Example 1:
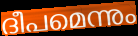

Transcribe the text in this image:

ദീപമെന്നും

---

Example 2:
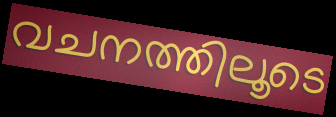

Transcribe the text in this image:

വചനത്തിലൂടെ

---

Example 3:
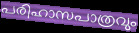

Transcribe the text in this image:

പരിഹാസപാത്രവും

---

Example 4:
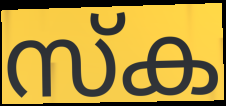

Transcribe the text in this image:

സ്ക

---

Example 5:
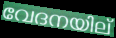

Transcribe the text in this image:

വേദനയില്